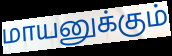
மாயனுக்கும்